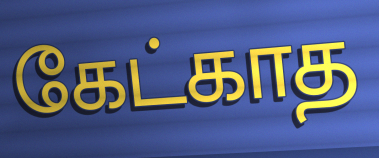
கேட்காத